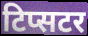
टिप्सटर